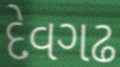
દેવગઢ